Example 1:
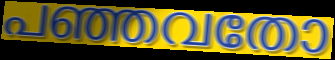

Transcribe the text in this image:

പഞ്ഞവതോ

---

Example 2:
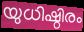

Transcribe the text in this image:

യുധിഷ്ഠിരം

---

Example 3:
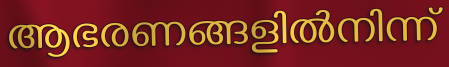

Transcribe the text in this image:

ആഭരണങ്ങളിൽനിന്ന്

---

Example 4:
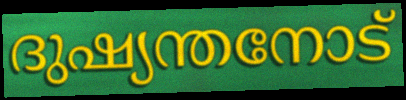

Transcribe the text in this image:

ദുഷ്യന്തനോട്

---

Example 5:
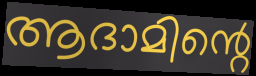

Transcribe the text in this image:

ആദാമിന്റെ